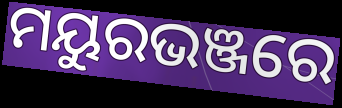
ମୟୁରଭଞ୍ଜରେ